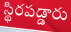
స్థిరపడ్డారు